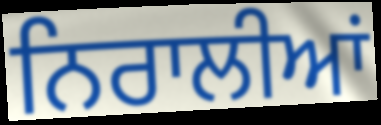
ਨਿਰਾਲੀਆਂ